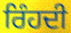
ਰਿੰਹਦੀ